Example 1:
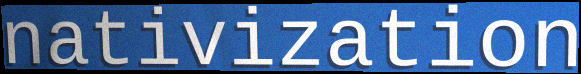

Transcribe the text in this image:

nativization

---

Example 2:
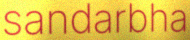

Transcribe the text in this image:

sandarbha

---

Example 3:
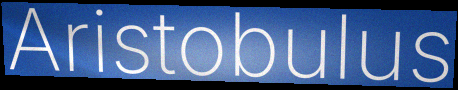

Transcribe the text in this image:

Aristobulus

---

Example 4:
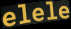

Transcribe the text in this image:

elele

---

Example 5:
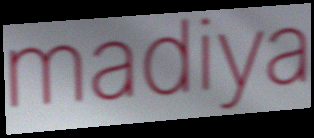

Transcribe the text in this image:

madiya